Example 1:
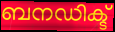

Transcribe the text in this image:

ബനഡിക്ട്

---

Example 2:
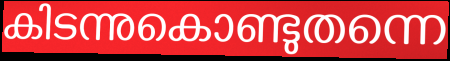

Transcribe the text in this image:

കിടന്നുകൊണ്ടുതന്നെ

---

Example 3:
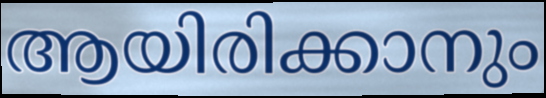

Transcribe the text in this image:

ആയിരിക്കാനും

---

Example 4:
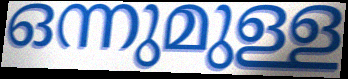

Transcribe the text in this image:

ഒന്നുമുള്ള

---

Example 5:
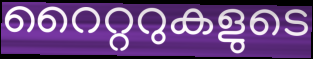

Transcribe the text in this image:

റൈറ്ററുകളുടെ